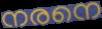
നരനെ